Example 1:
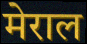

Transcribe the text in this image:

मेराल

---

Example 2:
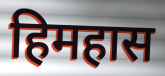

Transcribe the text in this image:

हिमहास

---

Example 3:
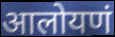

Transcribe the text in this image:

आलोयणं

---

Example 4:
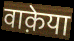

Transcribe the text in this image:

वाक़ेया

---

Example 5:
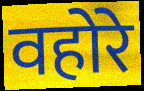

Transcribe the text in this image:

वहोरे